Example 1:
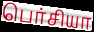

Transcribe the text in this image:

பெர்சியா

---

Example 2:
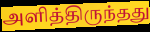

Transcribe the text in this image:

அளித்திருந்தது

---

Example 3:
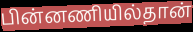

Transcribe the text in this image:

பின்னணியில்தான்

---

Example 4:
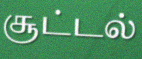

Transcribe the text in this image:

சூட்டல்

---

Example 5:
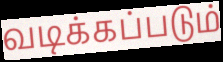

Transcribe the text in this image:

வடிக்கப்படும்